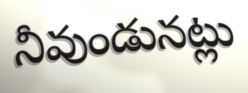
నీవుండునట్లు